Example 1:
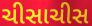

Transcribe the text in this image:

ચીસાચીસ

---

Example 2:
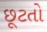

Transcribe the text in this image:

છૂટતો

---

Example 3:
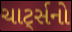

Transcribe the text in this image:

ચાર્ટ્સનો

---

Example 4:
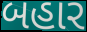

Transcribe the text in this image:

બહાર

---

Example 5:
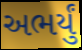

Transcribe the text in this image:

અભર્યું